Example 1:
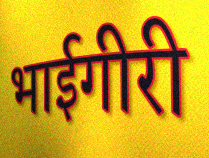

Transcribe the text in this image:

भाईगीरी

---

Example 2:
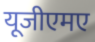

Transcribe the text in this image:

यूजीएमए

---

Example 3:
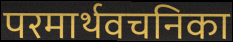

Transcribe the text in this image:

परमार्थवचनिका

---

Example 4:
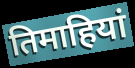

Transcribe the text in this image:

तिमाहियां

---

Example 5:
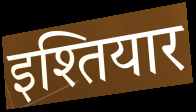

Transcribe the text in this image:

इश्तियार